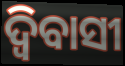
ଦ୍ବିବାସୀ